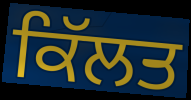
ਕਿੱਲਤ